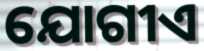
ଯୋଗୀଏ